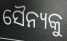
ସୈନ୍ୟକୁ